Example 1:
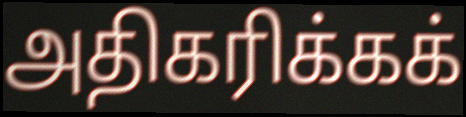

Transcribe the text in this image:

அதிகரிக்கக்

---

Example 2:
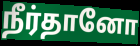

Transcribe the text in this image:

நீர்தானோ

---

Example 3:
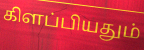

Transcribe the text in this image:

கிளப்பியதும்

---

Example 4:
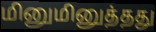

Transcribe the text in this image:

மினுமினுத்தது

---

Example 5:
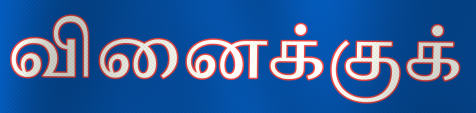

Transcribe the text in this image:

வினைக்குக்